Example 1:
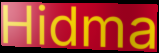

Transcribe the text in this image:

Hidma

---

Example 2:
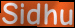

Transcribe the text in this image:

Sidhu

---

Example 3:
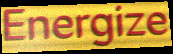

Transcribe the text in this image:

Energize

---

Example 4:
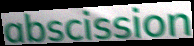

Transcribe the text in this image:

abscission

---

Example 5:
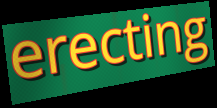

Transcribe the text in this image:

erecting